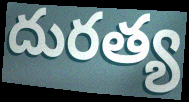
దురత్య